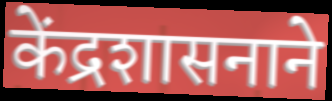
केंद्रशासनाने